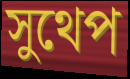
সুথেপ